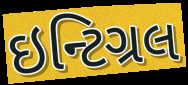
ઇન્ટિગ્રલ